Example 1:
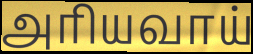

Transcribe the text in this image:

அரியவாய்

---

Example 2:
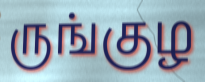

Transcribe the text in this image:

ருங்குழ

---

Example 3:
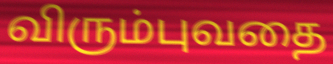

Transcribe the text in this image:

விரும்புவதை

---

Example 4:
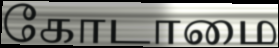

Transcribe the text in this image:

கோடாமை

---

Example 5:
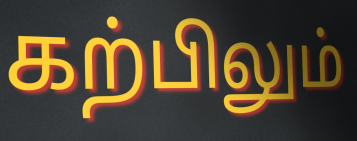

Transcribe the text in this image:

கற்பிலும்